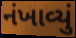
નંખાવ્યું